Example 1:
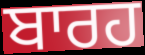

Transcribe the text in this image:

ਬਾਰਹ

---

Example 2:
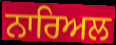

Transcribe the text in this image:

ਨਾਰਿਅਲ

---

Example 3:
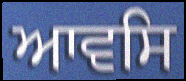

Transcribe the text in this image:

ਆਵਸਿ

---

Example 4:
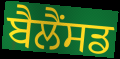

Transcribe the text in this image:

ਬੈਲੈਂਸਡ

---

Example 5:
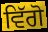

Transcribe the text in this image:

ਵਿੱਗੋ